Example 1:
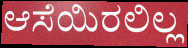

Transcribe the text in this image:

ಆಸೆಯಿರಲಿಲ್ಲ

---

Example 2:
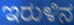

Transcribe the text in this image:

ಇರುಳಿನ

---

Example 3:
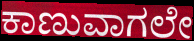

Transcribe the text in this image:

ಕಾಣುವಾಗಲೇ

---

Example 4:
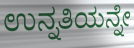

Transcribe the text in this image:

ಉನ್ನತಿಯನ್ನೇ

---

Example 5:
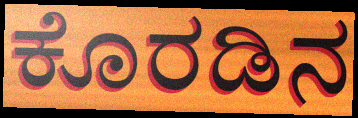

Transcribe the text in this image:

ಕೊರಡಿನ